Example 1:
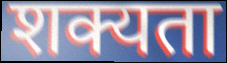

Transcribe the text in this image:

शक्‍यता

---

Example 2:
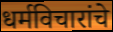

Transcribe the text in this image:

धर्मविचारांचे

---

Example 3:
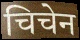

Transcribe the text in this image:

चिचेन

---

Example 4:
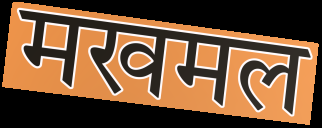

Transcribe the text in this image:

मखमल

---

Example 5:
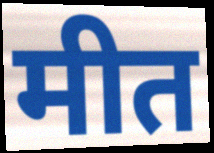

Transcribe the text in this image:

मीत